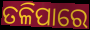
ତଳିପାରେ